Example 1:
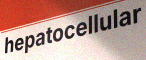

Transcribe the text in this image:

hepatocellular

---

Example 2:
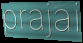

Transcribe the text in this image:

prajai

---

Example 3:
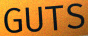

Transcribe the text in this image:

GUTS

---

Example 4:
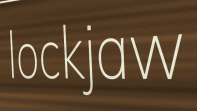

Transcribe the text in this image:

lockjaw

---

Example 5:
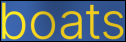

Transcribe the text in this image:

boats